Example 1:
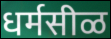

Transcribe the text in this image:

धर्मसीळ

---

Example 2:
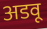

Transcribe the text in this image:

अडवू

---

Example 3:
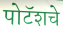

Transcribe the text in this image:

पोटॅशचे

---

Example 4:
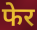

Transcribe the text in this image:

फेर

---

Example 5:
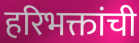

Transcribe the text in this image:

हरिभक्तांची